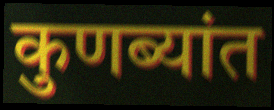
कुणब्यांत